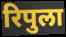
रिपुला